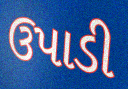
ઉપાડી